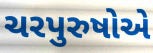
ચરપુરુષોએ